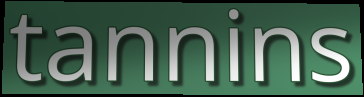
tannins